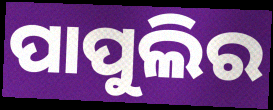
ପାପୁଲିର